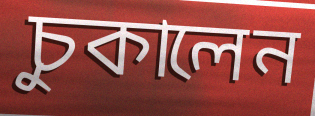
চুকালেন